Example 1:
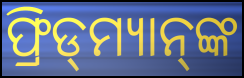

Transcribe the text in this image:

ଫ୍ରିଡ୍‌ମ୍ୟାନ୍‌ଙ୍କ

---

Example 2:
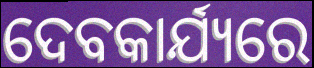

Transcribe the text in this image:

ଦେବକାର୍ଯ୍ୟରେ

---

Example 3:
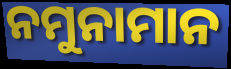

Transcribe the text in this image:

ନମୁନାମାନ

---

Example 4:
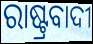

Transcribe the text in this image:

ରାଷ୍ଟ୍ରବାଦୀ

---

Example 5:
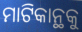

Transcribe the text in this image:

ମାଟିକାନ୍ଥକୁ